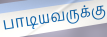
பாடியவருக்கு